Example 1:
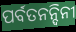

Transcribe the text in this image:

ପର୍ବତନନ୍ଦିନୀ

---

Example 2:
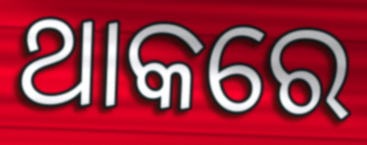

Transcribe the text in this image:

ଥାକରେ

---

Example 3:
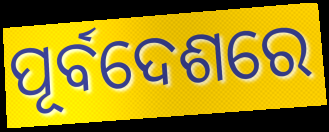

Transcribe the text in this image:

ପୂର୍ବଦେଶରେ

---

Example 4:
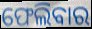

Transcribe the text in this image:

ଫେଲିବାର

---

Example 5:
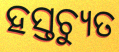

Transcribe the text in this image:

ହସ୍ତଚ୍ୟୁତ